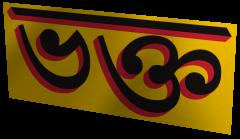
ভক্ত